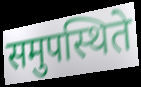
समुपस्थिते